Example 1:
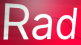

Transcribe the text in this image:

Rad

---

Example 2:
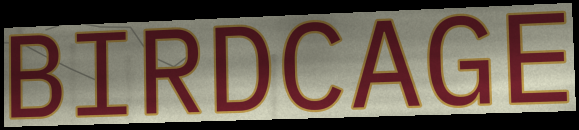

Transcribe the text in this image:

BIRDCAGE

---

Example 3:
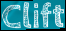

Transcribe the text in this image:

Clift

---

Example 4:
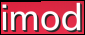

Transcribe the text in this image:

imod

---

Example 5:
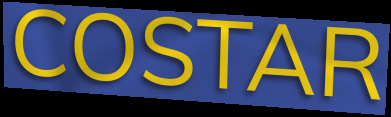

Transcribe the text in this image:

COSTAR